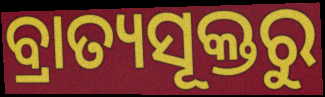
ବ୍ରାତ୍ୟସୂକ୍ତରୁ